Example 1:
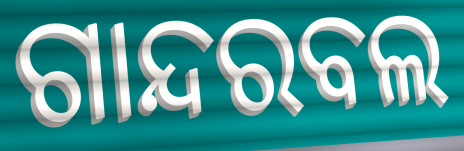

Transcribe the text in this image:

ଗାନ୍ଦରବଲ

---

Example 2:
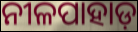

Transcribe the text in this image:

ନୀଳପାହାଡ଼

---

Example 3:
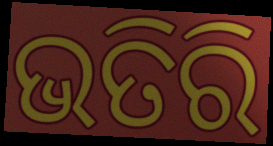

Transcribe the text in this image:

ଭତିରି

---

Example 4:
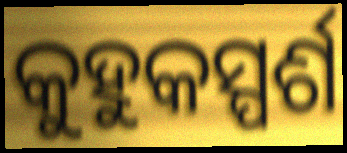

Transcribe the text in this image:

କୁହୁକସ୍ପର୍ଶ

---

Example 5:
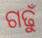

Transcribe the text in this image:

ଗଢୁଁ